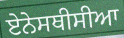
ਏਨੇਸਥੀਸੀਆ